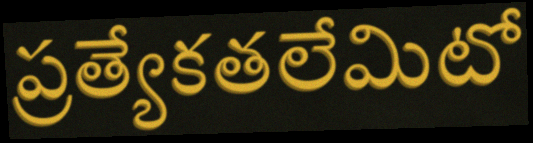
ప్రత్యేకతలేమిటో